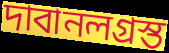
দাবানলগ্রস্ত